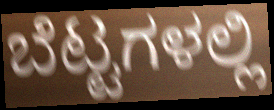
ಬೆಟ್ಟಗಳಲ್ಲಿ